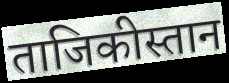
ताजिकीस्तान